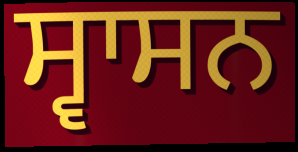
ਸ੍ਵਾਸਨ